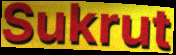
Sukrut